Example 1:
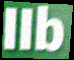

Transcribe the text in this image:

IIb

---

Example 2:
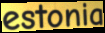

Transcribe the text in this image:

estonia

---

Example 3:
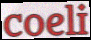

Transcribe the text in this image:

coeli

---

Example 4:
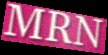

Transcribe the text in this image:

MRN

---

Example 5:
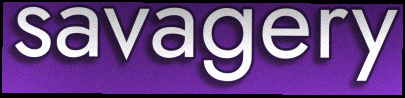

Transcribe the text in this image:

savagery